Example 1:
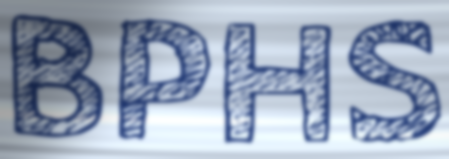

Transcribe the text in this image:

BPHS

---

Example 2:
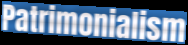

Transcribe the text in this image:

Patrimonialism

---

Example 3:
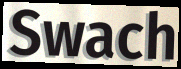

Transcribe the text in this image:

Swach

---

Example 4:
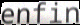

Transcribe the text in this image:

enfin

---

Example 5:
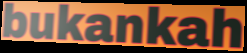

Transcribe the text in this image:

bukankah